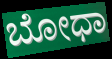
ಬೋಧಾ